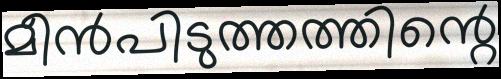
മീൻപിടുത്തത്തിന്റെ